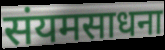
संयमसाधना